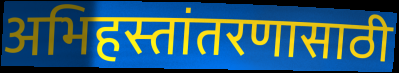
अभिहस्तांतरणासाठी